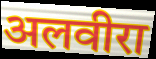
अलवीरा